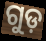
ଗୁଡ଼